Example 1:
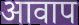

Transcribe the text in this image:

आवाप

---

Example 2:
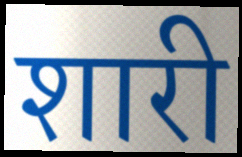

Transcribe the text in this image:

शारी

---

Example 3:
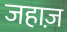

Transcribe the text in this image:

जहाज़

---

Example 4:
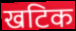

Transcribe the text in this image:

खटिक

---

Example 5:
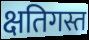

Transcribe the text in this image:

क्षतिगस्त